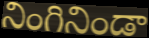
నింగినిండా